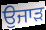
ਉੁਜਾੜ